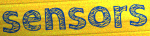
sensors